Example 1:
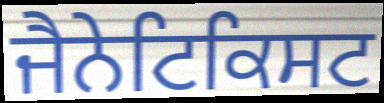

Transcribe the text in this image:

ਜੈਨੇਟਿਕਿਸਟ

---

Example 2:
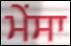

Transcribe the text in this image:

ਮੇਂਸਾ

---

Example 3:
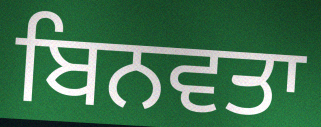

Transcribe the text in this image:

ਬਿਨਵਤਾ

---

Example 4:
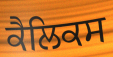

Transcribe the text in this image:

ਕੈਲਿਕਸ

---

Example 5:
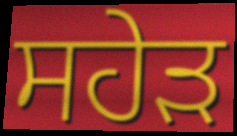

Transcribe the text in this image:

ਸਹੇੜ